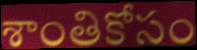
శాంతికోసం